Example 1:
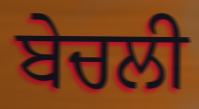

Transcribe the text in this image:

ਬੇਚਲੀ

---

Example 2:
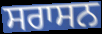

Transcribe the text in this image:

ਸਰਾਸਨ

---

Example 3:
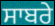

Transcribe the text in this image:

ਸਾਬਰੇ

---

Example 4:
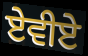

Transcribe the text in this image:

ਏਵੀਏ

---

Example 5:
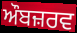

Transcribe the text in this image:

ਔਬਜ਼ਰਵ